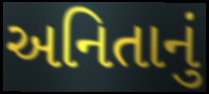
અનિતાનું